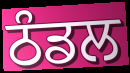
ਠੰਡਲ